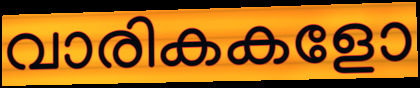
വാരികകളോ